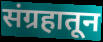
संग्रहातून